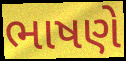
ભાષણે